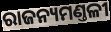
ରାଜନ୍ୟମଣ୍ତଳୀ